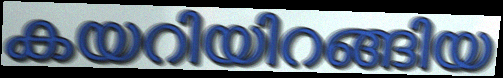
കയറിയിറങ്ങിയ